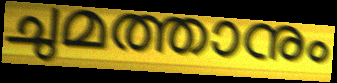
ചുമത്താനും